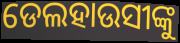
ଡେଲହାଉସୀଙ୍କୁ